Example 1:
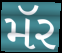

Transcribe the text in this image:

મૅર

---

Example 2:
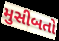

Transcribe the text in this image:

મુસીબતો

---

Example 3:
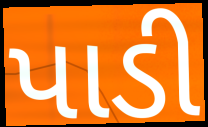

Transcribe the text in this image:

પાડી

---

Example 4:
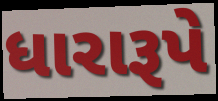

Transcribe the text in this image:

ધારારૂપે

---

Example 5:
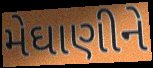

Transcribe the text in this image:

મેઘાણીને